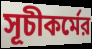
সূচীকর্মের